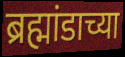
ब्रह्मांडाच्या